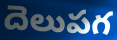
దెలుపగ